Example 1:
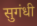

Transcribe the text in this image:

सुगंधी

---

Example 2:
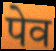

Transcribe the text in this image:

पेव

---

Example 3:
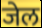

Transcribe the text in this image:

जेल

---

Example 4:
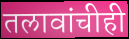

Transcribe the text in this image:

तलावांचीही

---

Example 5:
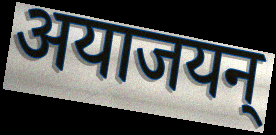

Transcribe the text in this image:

अयाजयन्